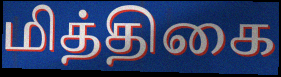
மித்திகை